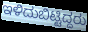
ಇಳಿದುಬಿಟ್ಟಿದ್ದರು